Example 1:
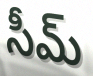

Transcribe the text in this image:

సీమ్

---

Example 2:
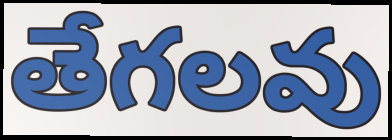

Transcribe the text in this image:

తేగలవు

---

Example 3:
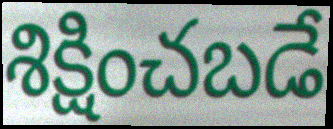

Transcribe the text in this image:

శిక్షించబడే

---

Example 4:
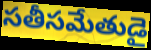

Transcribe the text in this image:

సతీసమేతుడై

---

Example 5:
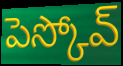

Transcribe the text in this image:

పెస్కోవ్